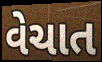
વેચાત